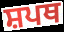
ਸ਼ਪਥ